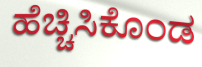
ಹೆಚ್ಚಿಸಿಕೊಂಡ